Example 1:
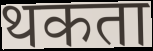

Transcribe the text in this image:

थकता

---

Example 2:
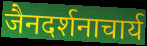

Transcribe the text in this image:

जैनदर्शनाचार्य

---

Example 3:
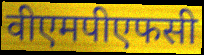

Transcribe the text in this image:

वीएमपीएफसी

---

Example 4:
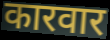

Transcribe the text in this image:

कारवार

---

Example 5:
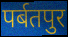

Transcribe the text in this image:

पर्बतपुर